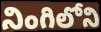
నింగిలోని